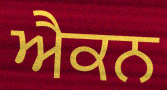
ਐਕਨ